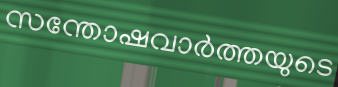
സന്തോഷവാർത്തയുടെ